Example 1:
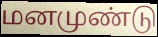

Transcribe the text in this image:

மனமுண்டு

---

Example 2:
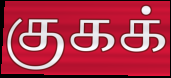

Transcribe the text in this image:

குகக்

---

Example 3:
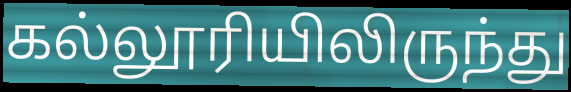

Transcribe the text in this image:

கல்லூரியிலிருந்து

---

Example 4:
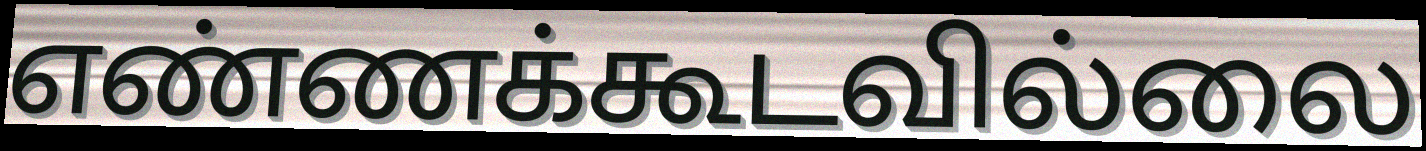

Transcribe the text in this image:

எண்ணக்கூடவில்லை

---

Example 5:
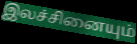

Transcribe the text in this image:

இலச்சினையும்